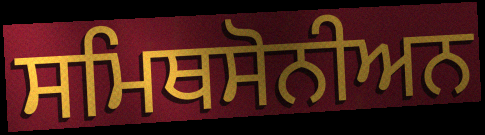
ਸਮਿਥਸੋਨੀਅਨ